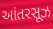
આંતરસૂઝ